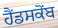
ਹੈਂਡਸਕੋਂਬ